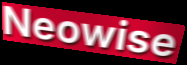
Neowise